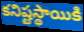
కనిష్టస్థాయికి